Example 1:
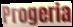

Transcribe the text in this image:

Progeria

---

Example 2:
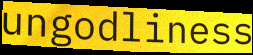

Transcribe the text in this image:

ungodliness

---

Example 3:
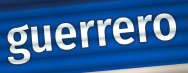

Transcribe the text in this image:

guerrero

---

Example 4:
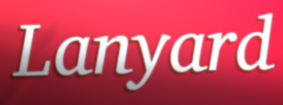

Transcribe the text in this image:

Lanyard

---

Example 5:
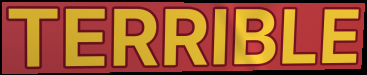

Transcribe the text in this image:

TERRIBLE